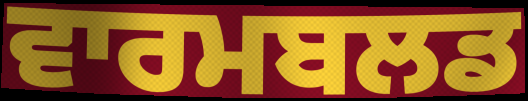
ਵਾਰਮਬਲਡ